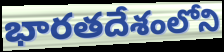
భారతదేశంలోని